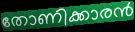
തോണിക്കാരൻ